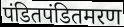
पंडितपंडितमरण